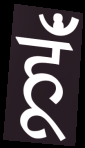
हूंँ